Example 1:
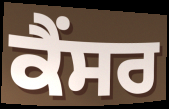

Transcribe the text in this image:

ਕੈੰਸਰ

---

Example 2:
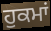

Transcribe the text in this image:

ਹੁਕਮਾਂ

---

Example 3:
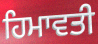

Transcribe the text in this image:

ਹਿਮਾਵਤੀ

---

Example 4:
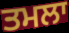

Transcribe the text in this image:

ਤਮਲਾ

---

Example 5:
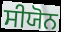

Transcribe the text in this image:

ਸੀਯੋਨ